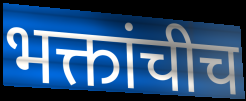
भक्तांचीच